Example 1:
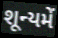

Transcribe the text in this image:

શૂન્યમેં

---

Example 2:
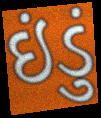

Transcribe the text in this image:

ઇંડું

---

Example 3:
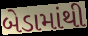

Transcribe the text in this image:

બેડામાંથી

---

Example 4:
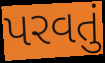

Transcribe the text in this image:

પરવતું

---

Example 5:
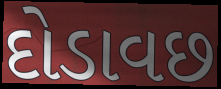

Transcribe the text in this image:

દોડાવછ